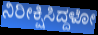
ನಿರೀಕ್ಷಿಸಿದ್ದಳೋ